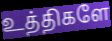
உத்திகளே